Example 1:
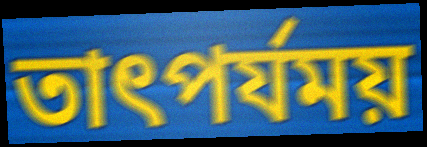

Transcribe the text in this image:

তাৎপর্যময়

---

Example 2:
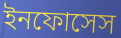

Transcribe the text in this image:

ইনফোসেস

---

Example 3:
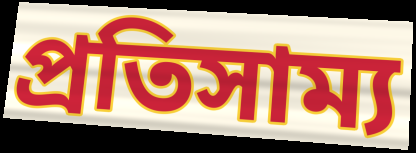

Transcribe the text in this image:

প্রতিসাম্য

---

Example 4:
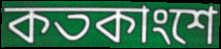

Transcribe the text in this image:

কতকাংশে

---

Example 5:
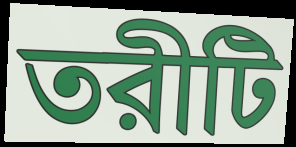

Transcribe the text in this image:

তরীটি